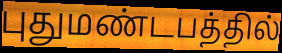
புதுமண்டபத்தில்